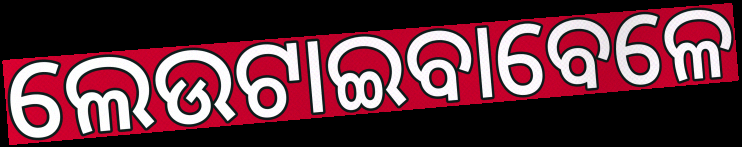
ଲେଉଟାଇବାବେଳେ